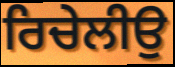
ਰਿਚੇਲੀਉ